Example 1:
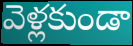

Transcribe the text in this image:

వెళ్లకుండా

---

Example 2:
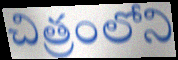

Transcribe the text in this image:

చిత్రంలోని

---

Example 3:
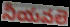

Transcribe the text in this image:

నీయవలె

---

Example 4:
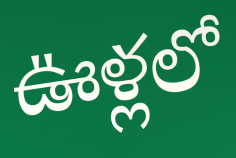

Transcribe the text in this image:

ఊళ్లలో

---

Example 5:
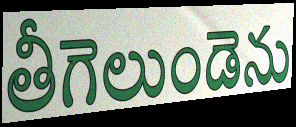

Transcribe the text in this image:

తీగెలుండెను